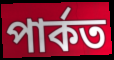
পাৰ্কত